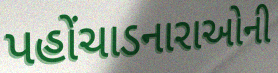
પહોંચાડનારાઓની